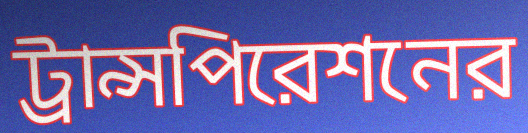
ট্রান্সপিরেশনের